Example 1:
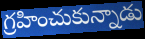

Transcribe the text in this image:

గ్రహించుకున్నాడు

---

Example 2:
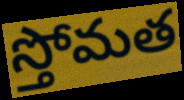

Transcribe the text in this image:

స్తోమత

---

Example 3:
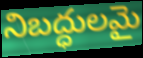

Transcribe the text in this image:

నిబద్ధులమై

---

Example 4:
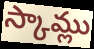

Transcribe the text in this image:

స్కామ్లు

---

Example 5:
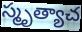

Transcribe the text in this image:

స్మృత్యాచ